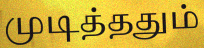
முடித்ததும்